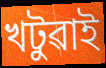
খটুৱাই